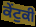
ਕੇਂਟੁਕੀ